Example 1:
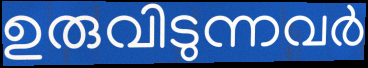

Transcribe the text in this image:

ഉരുവിടുന്നവർ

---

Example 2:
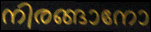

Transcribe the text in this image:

നിരങ്ങാനോ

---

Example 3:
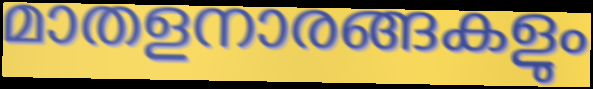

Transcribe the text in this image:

മാതളനാരങ്ങകളും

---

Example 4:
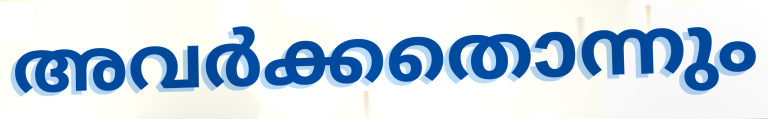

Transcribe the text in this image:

അവർക്കതൊന്നും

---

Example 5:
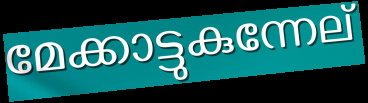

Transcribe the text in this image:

മേക്കാട്ടുകുന്നേല്